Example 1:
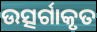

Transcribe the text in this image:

ଉତ୍ସର୍ଗାକୃତ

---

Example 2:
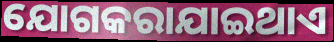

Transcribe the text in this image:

ଯୋଗକରାଯାଇଥାଏ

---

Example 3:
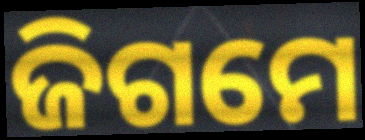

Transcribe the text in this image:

ଜିଗମେ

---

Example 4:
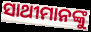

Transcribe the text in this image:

ସାଥୀମାନଙ୍କୁ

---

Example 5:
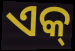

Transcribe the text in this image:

ଏକ୍